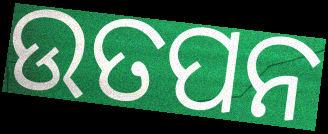
ଉତପନ